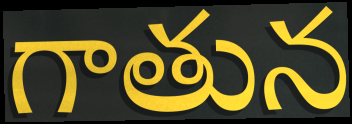
గాతున